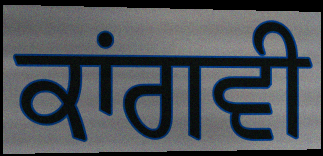
ਕਾਂਗਵੀ